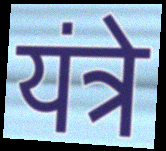
यंत्रे